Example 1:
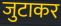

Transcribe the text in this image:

जुटाकर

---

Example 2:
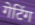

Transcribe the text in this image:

गेटिंग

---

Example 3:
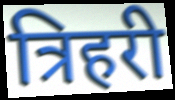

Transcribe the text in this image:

त्रिहरी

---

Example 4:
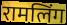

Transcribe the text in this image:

रामलिंग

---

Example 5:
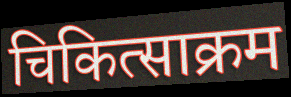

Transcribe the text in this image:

चिकित्साक्रम